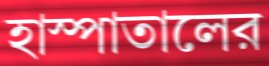
হাস্পাতালের